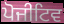
ਪੋਜੀਟਿਵ